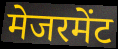
मेजरमेंट